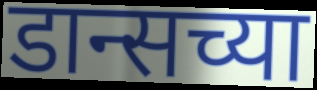
डान्सच्या